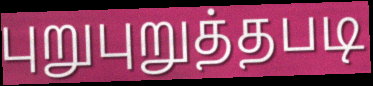
புறுபுறுத்தபடி